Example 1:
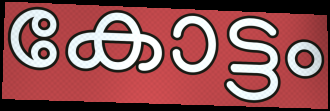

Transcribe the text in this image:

കോട്ടം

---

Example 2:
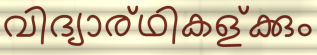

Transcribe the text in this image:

വിദ്യാര്ഥികള്ക്കും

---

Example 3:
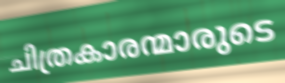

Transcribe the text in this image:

ചിത്രകാരന്മാരുടെ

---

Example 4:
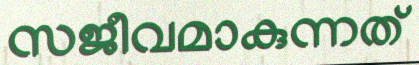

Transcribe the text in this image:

സജീവമാകുന്നത്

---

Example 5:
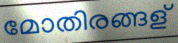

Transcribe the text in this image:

മോതിരങ്ങള്